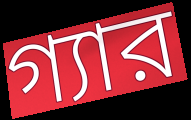
গ্যার